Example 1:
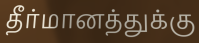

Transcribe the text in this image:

தீர்மானத்துக்கு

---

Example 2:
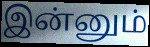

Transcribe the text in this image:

இன்னும்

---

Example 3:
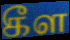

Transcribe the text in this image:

கீள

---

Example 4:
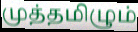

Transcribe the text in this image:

முத்தமிழும்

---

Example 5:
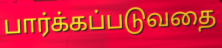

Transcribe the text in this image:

பார்க்கப்படுவதை